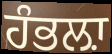
ਹੰਭਲ਼ਾ